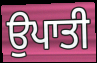
ਉਪਾਤੀ